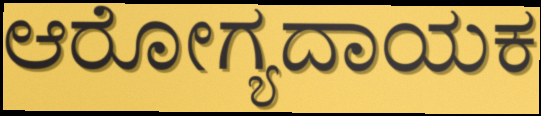
ಆರೋಗ್ಯದಾಯಕ